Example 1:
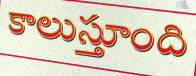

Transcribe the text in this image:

కాలుస్తూంది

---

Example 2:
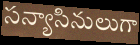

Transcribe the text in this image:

సన్యాసినులుగా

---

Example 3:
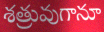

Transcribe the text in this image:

శత్రువుగానూ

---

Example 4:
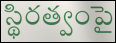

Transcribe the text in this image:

స్థిరత్వంపై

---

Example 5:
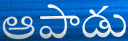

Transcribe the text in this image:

ఆపాడు